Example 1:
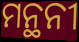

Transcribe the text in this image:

ମନ୍ଥନୀ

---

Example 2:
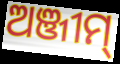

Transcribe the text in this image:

ଅଞ୍ଜୀମ୍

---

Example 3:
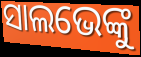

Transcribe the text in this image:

ସାଲଭେଙ୍କୁ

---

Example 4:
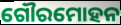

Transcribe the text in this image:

ଗୌରମୋହନ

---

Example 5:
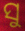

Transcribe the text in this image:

ସୁ